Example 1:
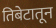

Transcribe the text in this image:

तिबेटातून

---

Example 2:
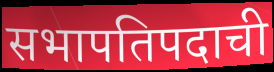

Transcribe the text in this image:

सभापतिपदाची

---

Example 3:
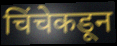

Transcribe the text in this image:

चिंचेकडून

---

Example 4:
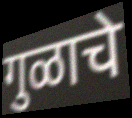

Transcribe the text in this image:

गुळाचे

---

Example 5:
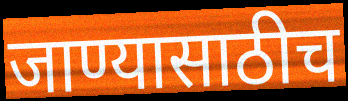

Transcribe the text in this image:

जाण्यासाठीच